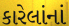
કારેલાંનાં